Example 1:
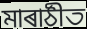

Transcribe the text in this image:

মাৰাঠীত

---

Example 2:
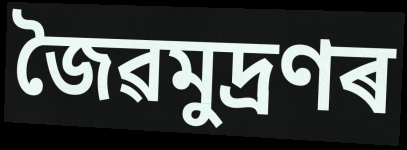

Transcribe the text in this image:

জৈৱমুদ্ৰণৰ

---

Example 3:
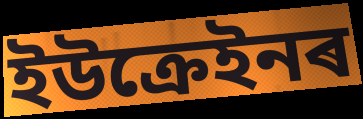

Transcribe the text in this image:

ইউক্ৰেইনৰ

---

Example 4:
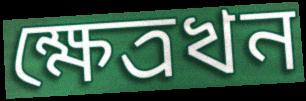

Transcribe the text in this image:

ক্ষেত্ৰখন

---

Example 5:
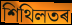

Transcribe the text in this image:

শিথিলতৰ